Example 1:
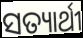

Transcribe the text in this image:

ସତ୍ୟାର୍ଥୀ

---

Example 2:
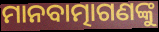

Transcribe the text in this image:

ମାନବାତ୍ମାଗଣଙ୍କୁ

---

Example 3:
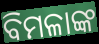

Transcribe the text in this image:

ବିମଳାଙ୍କ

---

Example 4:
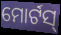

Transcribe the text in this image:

ମୋର୍ଟସ୍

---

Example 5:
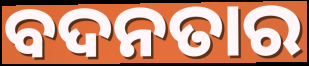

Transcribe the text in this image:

ବଦନତାର